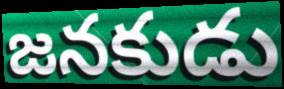
జనకుడు